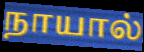
நாயால்